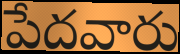
పేదవారు